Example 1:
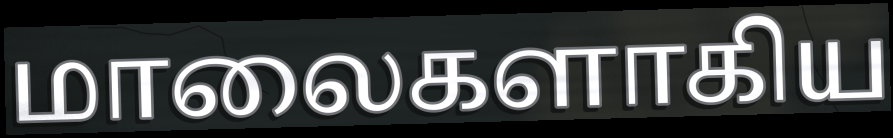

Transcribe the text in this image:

மாலைகளாகிய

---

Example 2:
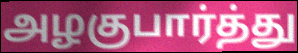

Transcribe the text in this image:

அழகுபார்த்து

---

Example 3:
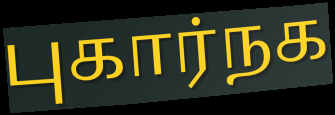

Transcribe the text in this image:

புகார்நக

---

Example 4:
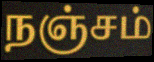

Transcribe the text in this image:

நஞ்சம்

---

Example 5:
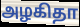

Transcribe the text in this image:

அழகிதா